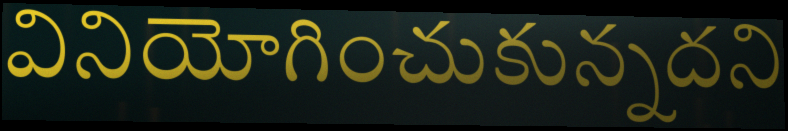
వినియోగించుకున్నదని